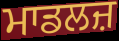
ਮਾਡਲਜ਼